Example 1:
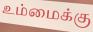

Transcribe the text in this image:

உம்மைக்கு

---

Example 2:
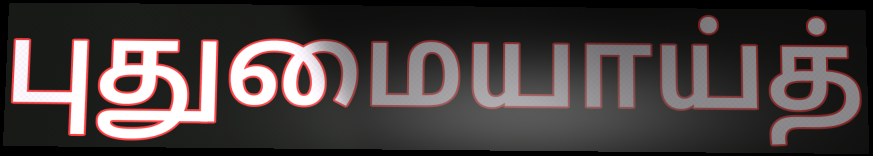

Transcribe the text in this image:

புதுமையாய்த்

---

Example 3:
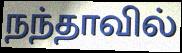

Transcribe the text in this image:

நந்தாவில்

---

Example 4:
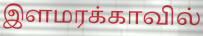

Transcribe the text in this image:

இளமரக்காவில்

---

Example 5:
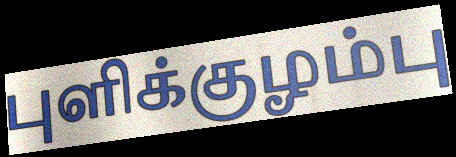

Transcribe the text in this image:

புளிக்குழம்பு